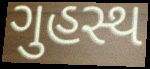
ગુહસ્થ